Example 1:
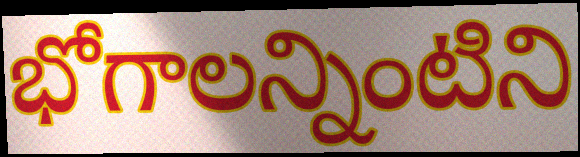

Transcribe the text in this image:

భోగాలన్నింటిని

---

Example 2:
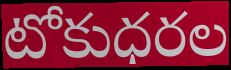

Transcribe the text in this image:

టోకుధరల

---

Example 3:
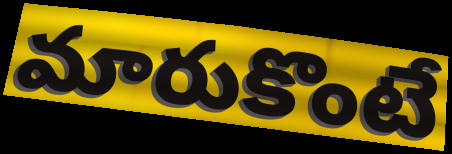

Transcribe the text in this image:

మారుకొంటే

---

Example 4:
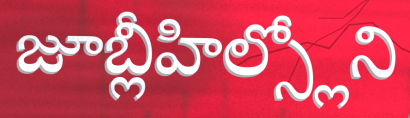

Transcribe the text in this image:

జూబ్లీహిల్స్లోని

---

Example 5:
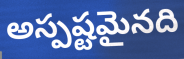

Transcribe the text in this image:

అస్పష్టమైనది